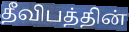
தீவிபத்தின்